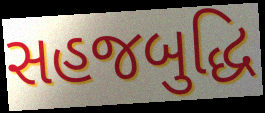
સહજબુદ્ધિ